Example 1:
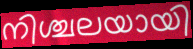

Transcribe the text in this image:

നിശ്ചലയായി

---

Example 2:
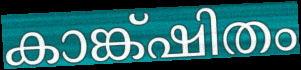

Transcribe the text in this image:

കാങ്ക്ഷിതം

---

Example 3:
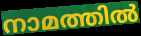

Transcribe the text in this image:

നാമത്തിൽ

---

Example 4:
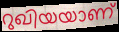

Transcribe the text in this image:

റുഖിയയാണ്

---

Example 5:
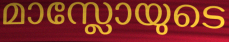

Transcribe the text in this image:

മാസ്ലോയുടെ